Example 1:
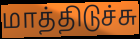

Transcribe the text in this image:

மாத்திடுச்சு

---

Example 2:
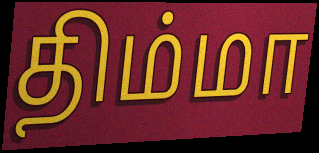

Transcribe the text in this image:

திம்மா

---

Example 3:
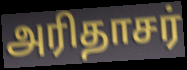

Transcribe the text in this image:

அரிதாசர்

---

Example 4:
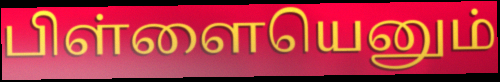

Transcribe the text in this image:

பிள்ளையெனும்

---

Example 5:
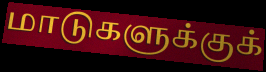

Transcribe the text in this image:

மாடுகளுக்குக்